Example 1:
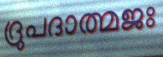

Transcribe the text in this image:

ദ്രുപദാത്മജഃ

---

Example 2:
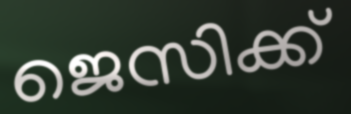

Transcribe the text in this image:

ജെസിക്ക്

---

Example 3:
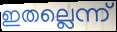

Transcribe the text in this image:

ഇതല്ലെന്ന്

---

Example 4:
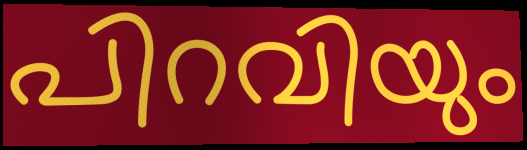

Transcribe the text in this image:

പിറവിയും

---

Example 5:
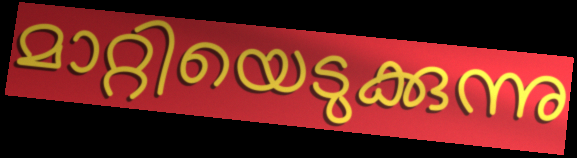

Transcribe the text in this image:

മാറ്റിയെടുക്കുന്നു